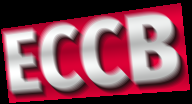
ECCB